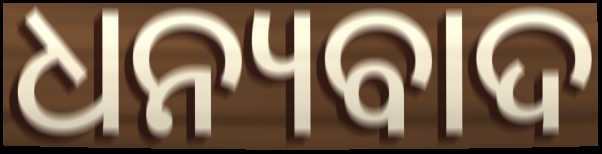
ଧନ୍ୟବାଦ